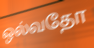
ஒல்வதோ